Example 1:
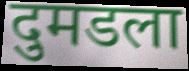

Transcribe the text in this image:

दुमडला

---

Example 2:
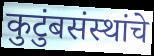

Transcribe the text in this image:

कुटुंबसंस्थांचे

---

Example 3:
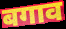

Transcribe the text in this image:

बगाव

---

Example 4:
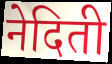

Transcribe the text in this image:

नेदिती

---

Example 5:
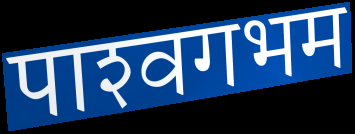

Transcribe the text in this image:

पाश्वगभम